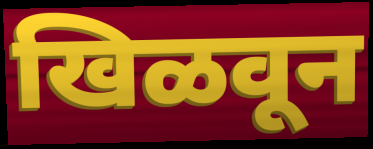
खिळवून